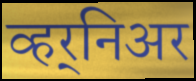
व्हर्निअर